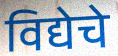
विद्येचे